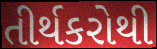
તીર્થકરોથી